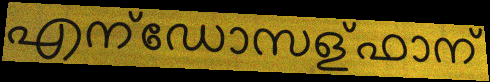
എന്ഡോസള്ഫാന്